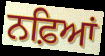
ਨਫ਼ਿਆਂ